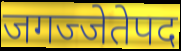
जगज्जेतेपद